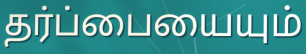
தர்ப்பையையும்